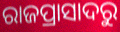
ରାଜପ୍ରାସାଦରୁ